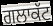
ਗਲਾਕੱਟ